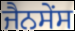
ਜੈਨਸੇਂਸ